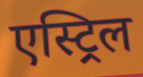
एस्ट्रिल